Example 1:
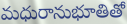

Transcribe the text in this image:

మధురానుభూతితో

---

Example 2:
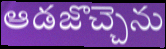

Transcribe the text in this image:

ఆడజొచ్చెను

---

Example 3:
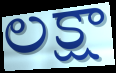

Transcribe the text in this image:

లక్షా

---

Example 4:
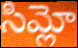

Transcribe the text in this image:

సిమ్లో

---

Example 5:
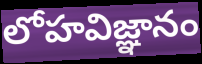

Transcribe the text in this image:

లోహవిజ్ఞానం